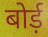
बोर्ड़